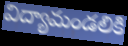
విద్యామండలికి